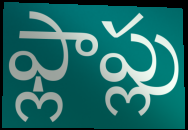
ఫ్లాప్లు